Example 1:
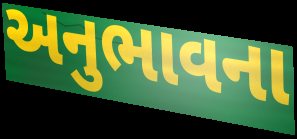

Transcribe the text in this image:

અનુભાવના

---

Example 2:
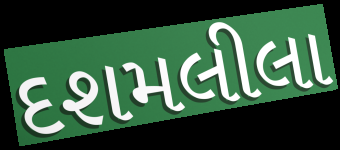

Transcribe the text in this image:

દશમલીલા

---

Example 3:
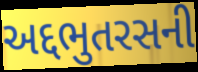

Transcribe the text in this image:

અદ્દભુતરસની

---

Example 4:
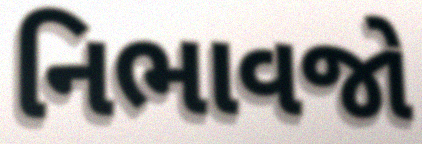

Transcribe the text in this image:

નિભાવજો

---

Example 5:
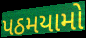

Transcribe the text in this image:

પઠમયામો